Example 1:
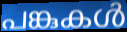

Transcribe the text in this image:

പങ്കുകൾ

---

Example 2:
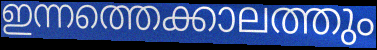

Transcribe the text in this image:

ഇന്നത്തെക്കാലത്തും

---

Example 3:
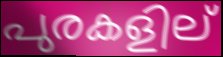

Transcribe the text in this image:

പുരകളില്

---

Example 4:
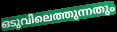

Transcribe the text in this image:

ഒടുവിലെത്തുന്നതും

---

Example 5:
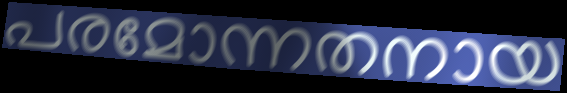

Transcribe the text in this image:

പരമോന്നതനായ